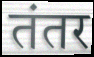
तंतर